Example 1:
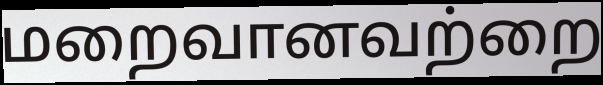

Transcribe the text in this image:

மறைவானவற்றை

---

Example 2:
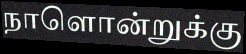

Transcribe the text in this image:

நாளொன்றுக்கு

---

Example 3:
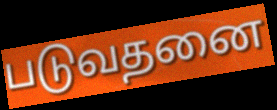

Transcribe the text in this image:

படுவதனை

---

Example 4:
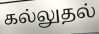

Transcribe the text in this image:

கல்லுதல்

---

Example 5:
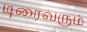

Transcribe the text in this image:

டிரைவரும்